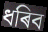
ধৰিব